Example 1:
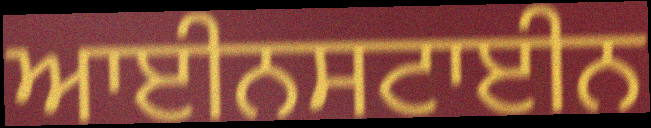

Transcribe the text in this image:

ਆਈਨਸਟਾਈਨ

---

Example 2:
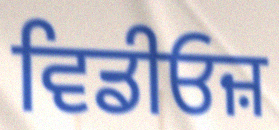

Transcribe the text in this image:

ਵਿਡੀਓਜ਼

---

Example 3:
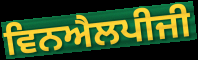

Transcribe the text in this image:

ਵਿਨਐਲਪੀਜੀ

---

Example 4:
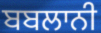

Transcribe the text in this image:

ਬਬਲਾਨੀ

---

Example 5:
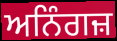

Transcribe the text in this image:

ਅਨਿੰਗਜ਼